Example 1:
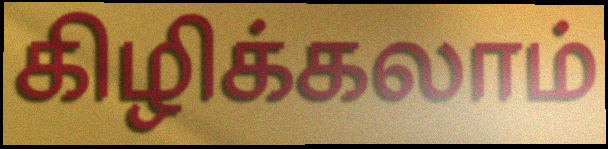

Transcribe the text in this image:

கிழிக்கலாம்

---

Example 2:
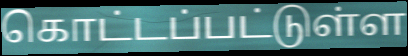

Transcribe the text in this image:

கொட்டப்பட்டுள்ள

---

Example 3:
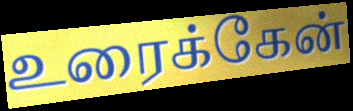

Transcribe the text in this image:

உரைக்கேன்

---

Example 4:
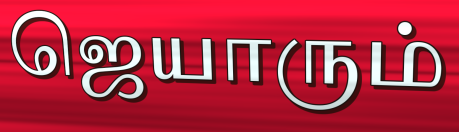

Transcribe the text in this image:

ஜெயாரும்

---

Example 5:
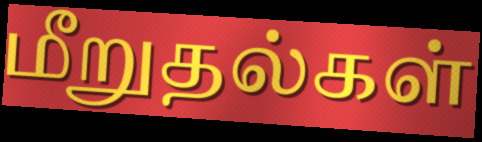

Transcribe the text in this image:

மீறுதல்கள்